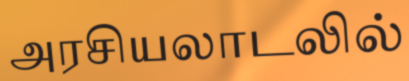
அரசியலாடலில்